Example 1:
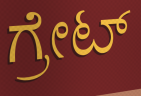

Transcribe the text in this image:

ಗ್ರೇಟ್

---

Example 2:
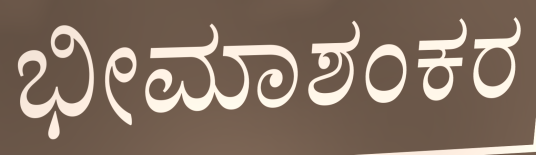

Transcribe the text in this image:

ಭೀಮಾಶಂಕರ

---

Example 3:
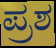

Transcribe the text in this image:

ಪ್ರಶ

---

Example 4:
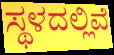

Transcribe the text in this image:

ಸ್ಥಳದಲ್ಲಿವೆ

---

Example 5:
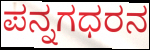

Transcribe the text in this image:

ಪನ್ನಗಧರನ